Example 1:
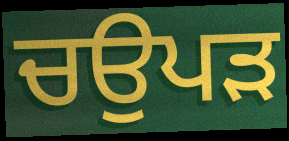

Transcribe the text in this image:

ਚਉਪੜ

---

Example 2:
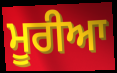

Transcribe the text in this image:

ਮੂਰੀਆ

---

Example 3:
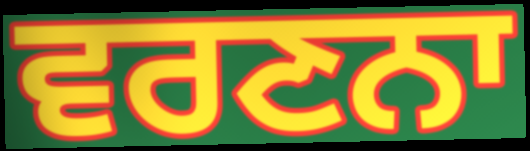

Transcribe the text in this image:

ਵਰਣਨਾ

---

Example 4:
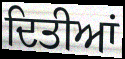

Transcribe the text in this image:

ਦਿਤੀਆਂ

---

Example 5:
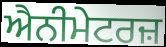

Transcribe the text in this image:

ਐਨੀਮੇਟਰਜ਼